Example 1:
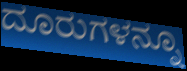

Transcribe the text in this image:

ದೂರುಗಳನ್ನೂ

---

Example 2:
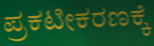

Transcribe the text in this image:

ಪ್ರಕಟೀಕರಣಕ್ಕೆ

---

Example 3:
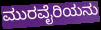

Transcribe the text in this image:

ಮುರವೈರಿಯನು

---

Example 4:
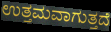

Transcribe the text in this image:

ಉತ್ತಮವಾಗುತ್ತದೆ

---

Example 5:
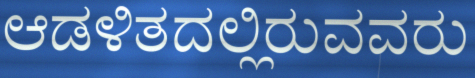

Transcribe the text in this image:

ಆಡಳಿತದಲ್ಲಿರುವವರು